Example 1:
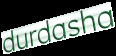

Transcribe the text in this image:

durdasha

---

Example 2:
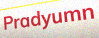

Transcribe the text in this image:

Pradyumn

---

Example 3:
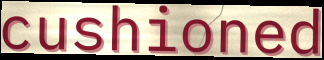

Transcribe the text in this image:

cushioned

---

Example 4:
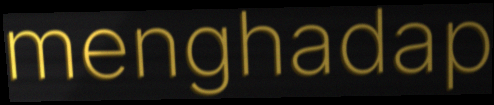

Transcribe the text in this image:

menghadap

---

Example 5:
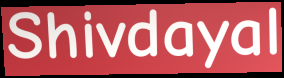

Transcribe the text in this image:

Shivdayal